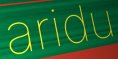
aridu